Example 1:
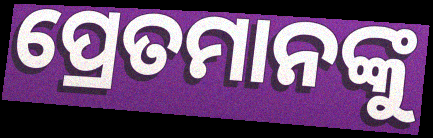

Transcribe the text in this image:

ପ୍ରେତମାନଙ୍କୁ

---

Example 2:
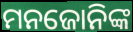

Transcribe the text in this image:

ମନଜୋନିଙ୍କ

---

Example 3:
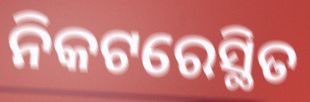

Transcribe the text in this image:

ନିକଟରେସ୍ଥିତ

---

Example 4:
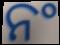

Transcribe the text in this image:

ନଂ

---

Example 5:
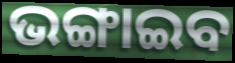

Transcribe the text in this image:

ଭଙ୍ଗାଇବ